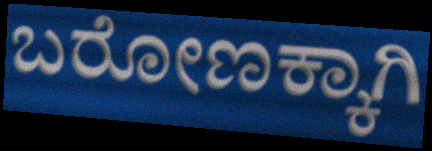
ಬರೋಣಕ್ಕಾಗಿ